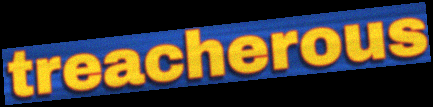
treacherous